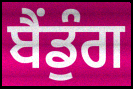
ਬੈਂਡੁੰਗ